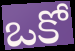
ఒకో